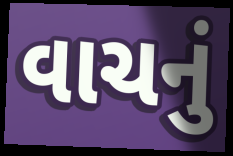
વાચનું